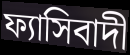
ফ্যাসিবাদী